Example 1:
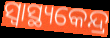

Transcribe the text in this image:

ସ୍ବାସ୍ଥ୍ୟକେନ୍ଦ୍ର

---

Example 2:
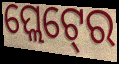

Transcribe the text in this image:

ପ୍ଲେଟ୍‍ରେ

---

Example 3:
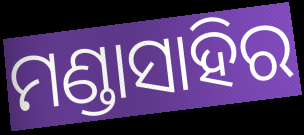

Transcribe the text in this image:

ମଣ୍ଡାସାହିର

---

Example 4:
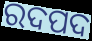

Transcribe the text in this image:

ରଦପଦ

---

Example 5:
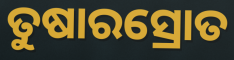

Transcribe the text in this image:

ତୁଷାରସ୍ରୋତ